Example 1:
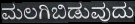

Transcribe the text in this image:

ಮಲಗಿಬಿಡುವುದು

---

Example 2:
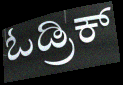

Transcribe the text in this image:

ಓಡ್ರಿಕ್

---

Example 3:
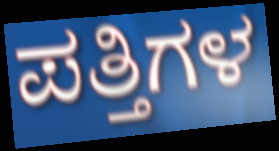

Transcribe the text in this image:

ಪತ್ತಿಗಳ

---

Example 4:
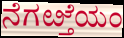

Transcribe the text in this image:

ನೆಗೞ್ತೆಯಂ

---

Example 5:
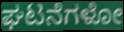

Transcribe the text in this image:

ಘಟನೆಗಳೋ